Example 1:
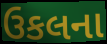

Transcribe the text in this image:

ઉકલના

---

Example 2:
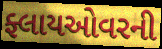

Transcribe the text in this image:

ફ્લાયઓવરની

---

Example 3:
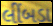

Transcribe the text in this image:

લીંબડા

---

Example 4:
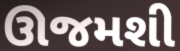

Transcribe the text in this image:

ઊજમશી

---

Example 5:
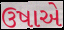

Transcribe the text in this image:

ઉષાએ